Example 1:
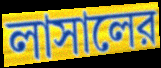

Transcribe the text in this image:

লাসালের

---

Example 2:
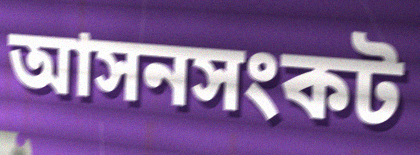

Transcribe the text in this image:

আসনসংকট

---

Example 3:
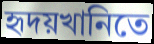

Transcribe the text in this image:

হৃদয়খানিতে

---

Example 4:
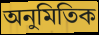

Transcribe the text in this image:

অনুমিতিক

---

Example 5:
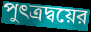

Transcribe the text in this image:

পুৎত্রদ্বয়ের